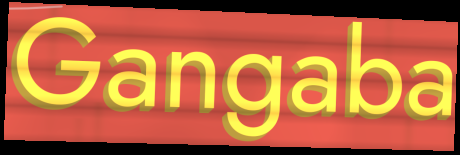
Gangaba